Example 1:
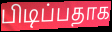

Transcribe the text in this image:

பிடிப்பதாக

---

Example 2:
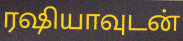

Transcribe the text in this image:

ரஷியாவுடன்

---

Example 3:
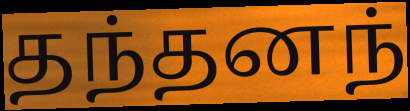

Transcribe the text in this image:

தந்தனந்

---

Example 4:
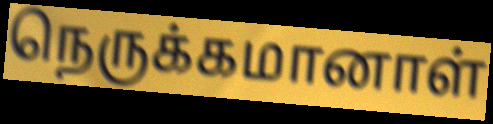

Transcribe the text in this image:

நெருக்கமானாள்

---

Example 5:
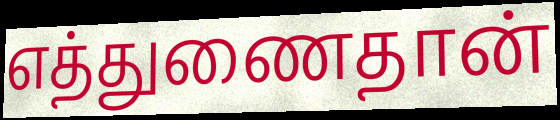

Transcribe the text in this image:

எத்துணைதான்